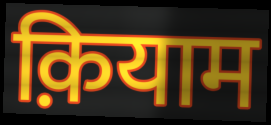
क़ियाम